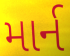
માર્ન